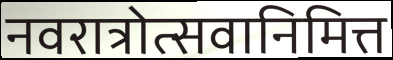
नवरात्रोत्सवानिमित्त